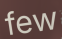
few